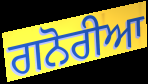
ਗਨੋਰੀਆ